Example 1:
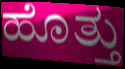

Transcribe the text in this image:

ಹೊತ್ತು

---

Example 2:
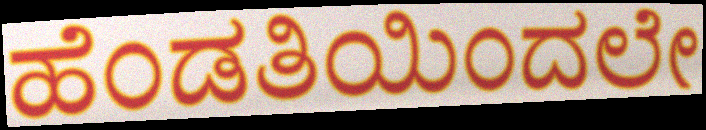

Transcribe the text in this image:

ಹೆಂಡತಿಯಿಂದಲೇ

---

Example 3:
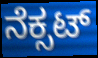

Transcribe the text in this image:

ನೆಕ್ಸಟ್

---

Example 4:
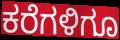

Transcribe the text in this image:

ಕರೆಗಳಿಗೂ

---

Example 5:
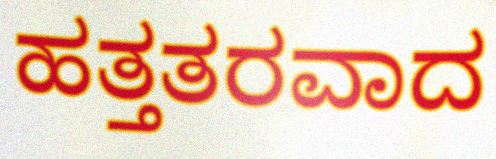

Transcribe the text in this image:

ಹತ್ತತರವಾದ